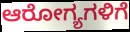
ಆರೋಗ್ಯಗಳಿಗೆ